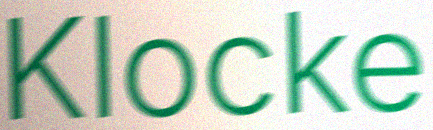
Klocke